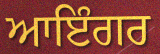
ਆਇੰਗਰ